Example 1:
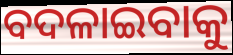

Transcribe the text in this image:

ବଦଳାଇବାକୁ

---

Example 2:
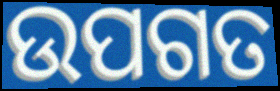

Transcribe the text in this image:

ଉପଗତ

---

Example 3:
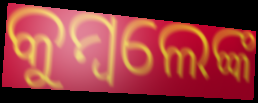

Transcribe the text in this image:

କୁମ୍ବଲେଙ୍କ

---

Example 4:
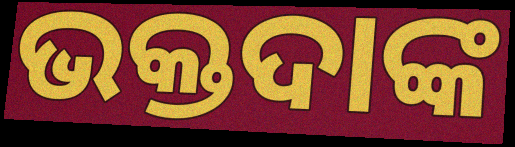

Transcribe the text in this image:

ଭକ୍ତଦାଙ୍କ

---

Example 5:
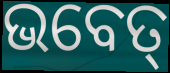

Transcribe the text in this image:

ଭବେତ୍